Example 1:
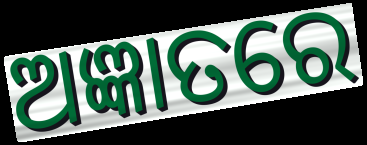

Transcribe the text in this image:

ଅଜ୍ଞାତରେ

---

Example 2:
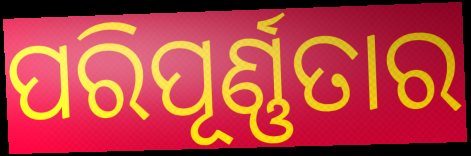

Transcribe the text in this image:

ପରିପୂର୍ଣ୍ଣତାର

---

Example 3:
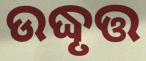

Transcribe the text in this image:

ଉଦ୍ଧୃତ୍ତ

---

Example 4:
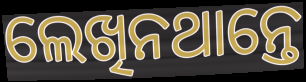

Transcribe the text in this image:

ଲେଖିନଥାନ୍ତେ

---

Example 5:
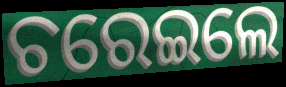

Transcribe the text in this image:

ଚରେଇଲେ